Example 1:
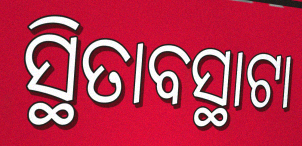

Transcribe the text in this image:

ସ୍ଥିତାବସ୍ଥାଟା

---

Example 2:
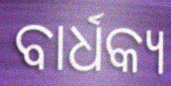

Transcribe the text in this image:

ବାର୍ଧକ୍ୟ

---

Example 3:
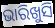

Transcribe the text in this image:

ଭାରିଖୁସି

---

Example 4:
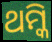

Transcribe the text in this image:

ଥମ୍କି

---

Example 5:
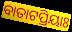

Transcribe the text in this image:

ବାତାଟପ୍ରିୟାଃ